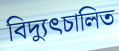
বিদ্যুৎচালিত